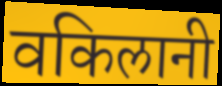
वकिलानी